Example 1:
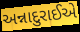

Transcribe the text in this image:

અન્નાદુરાઈએ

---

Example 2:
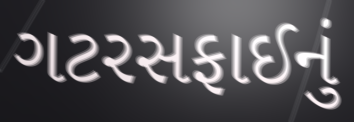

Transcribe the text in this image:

ગટરસફાઈનું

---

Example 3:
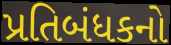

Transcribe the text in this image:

પ્રતિબંધકનો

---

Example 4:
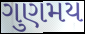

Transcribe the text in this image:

ગુણમય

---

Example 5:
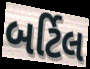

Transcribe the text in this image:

બર્ટિલ